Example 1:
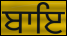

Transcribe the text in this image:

ਬਾਇ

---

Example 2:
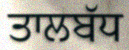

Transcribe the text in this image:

ਤਾਲਬੱਧ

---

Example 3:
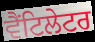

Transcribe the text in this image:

ਵੈਂਟਿਲੇਟਰ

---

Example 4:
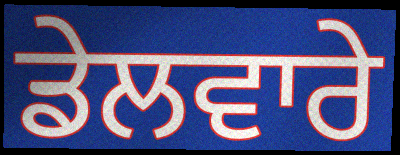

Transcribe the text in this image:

ਡੇਲਵਾਰੇ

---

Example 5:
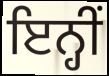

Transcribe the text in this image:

ਇਨ੍ਹੀਂ